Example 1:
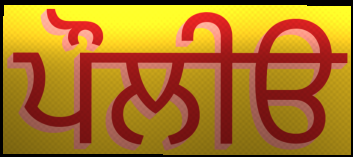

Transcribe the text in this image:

ਪੌਲੀੳ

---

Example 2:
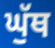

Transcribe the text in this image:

ਘੁੱਥ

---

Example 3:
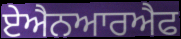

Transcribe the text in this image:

ਏਐਨਆਰਐਫ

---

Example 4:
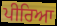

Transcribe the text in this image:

ਪੀਰਿਆ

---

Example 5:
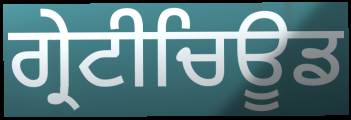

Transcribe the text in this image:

ਗ੍ਰੇਟੀਚਿਊਡ